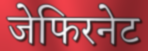
जेफिरनेट